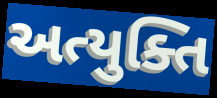
અત્યુક્તિ